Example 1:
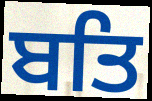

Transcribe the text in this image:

ਬਤਿ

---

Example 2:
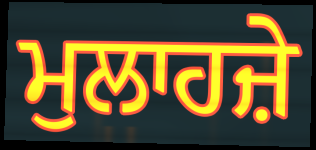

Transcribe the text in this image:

ਮੁਲਾਹਜ਼ੇ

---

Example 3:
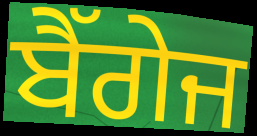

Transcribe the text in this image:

ਬੈੱਗੇਜ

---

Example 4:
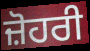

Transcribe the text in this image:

ਜ਼ੋਹਰੀ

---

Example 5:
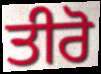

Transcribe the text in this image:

ਤੀਰੋ